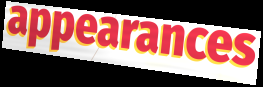
appearances